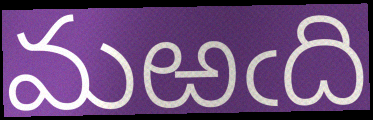
మఱఁది